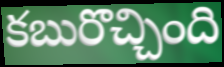
కబురొచ్చింది